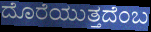
ದೊರೆಯುತ್ತದೆಂಬ